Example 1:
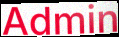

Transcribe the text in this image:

Admin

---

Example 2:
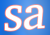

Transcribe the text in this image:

sa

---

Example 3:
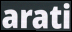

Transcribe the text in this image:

arati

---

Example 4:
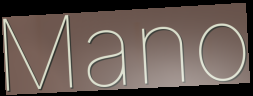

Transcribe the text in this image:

Mano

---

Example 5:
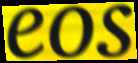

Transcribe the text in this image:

eos